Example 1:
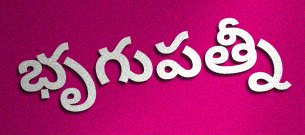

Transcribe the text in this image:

భృగుపత్నీ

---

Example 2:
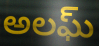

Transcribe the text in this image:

అలఘ్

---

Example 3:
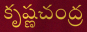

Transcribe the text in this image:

కృష్ణచంద్ర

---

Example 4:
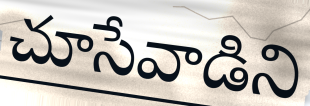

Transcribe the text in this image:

చూసేవాడిని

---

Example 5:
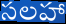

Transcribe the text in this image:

సలహా